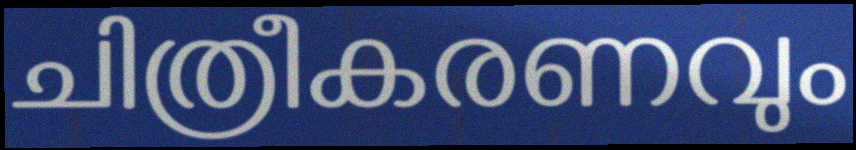
ചിത്രീകരണവും